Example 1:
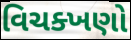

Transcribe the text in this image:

વિચક્ખણો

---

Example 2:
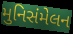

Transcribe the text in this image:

મુનિસંમેલન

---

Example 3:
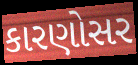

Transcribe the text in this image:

કારણોસર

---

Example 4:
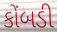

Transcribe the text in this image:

કોંબડી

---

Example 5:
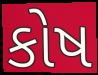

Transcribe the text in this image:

કોષ